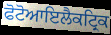
ਫੋਟੋਆਇਲੈਕਟ੍ਰਿਕ